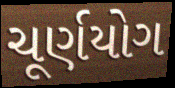
ચૂર્ણયોગ